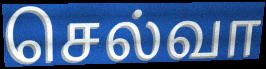
செல்வா